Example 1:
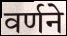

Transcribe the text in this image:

वर्णने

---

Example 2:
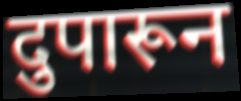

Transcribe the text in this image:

दुपारून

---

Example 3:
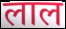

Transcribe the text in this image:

लाल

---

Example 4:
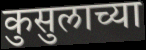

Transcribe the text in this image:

कुसुलाच्या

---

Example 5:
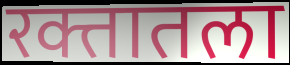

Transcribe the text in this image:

रक्तातला